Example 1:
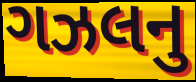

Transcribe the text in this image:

ગઝલનુ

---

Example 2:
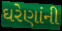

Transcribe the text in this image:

ઘરેણાંની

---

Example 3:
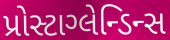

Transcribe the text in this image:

પ્રોસ્ટાગ્લેન્ડિન્સ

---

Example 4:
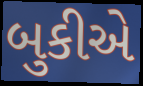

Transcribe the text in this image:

બુકીએ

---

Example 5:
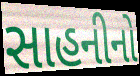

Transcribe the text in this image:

સાહનીનો